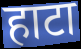
हाटा